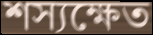
শস্যক্ষেত